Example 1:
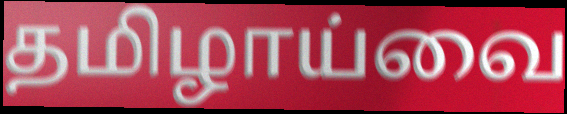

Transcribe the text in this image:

தமிழாய்வை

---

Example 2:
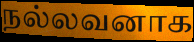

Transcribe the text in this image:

நல்லவனாக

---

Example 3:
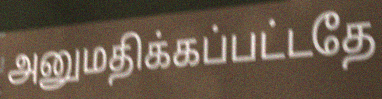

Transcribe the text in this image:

அனுமதிக்கப்பட்டதே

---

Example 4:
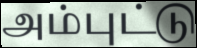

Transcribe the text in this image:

அம்புட்டு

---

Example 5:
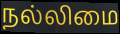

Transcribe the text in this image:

நல்லிமை